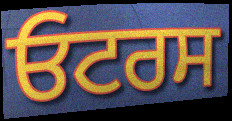
ਓਟਰਸ